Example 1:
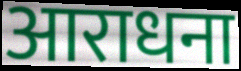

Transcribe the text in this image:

आराधना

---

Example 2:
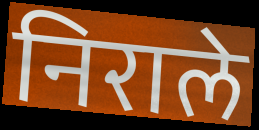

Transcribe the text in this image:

निराले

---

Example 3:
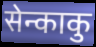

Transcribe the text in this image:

सेन्काकु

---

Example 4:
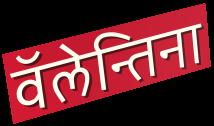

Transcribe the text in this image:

वॅलेन्तिना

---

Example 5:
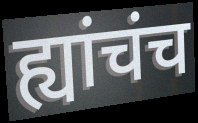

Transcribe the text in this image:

ह्यांचंच